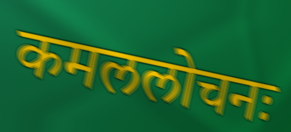
कमललोचनः